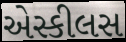
એસ્કીલસ